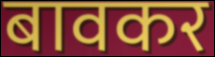
बावकर